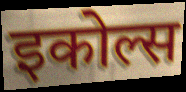
इकोल्स